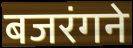
बजरंगने